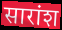
सारांश